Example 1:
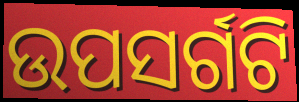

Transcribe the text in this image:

ଉପସର୍ଗଟି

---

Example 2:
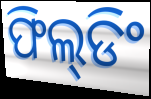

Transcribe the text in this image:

ଫିଲ୍‌ଡିଂ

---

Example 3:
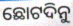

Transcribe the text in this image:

ଛୋଟଦିନୁ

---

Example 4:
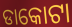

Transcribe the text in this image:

ଡାକୋଟା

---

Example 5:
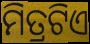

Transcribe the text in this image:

ମିତ୍ରଟିଏ